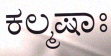
ಕಲ್ಮಷಾಃ